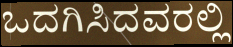
ಒದಗಿಸಿದವರಲ್ಲಿ